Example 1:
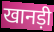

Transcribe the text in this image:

खानड़ी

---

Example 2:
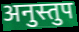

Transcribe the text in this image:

अनुस्तुप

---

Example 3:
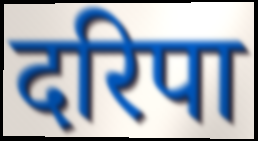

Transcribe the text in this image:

दरिपा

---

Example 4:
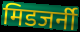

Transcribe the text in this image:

मिडजर्नी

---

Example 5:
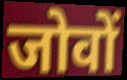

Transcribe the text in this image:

जोवों